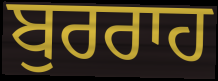
ਬੁਰਰਾਹ